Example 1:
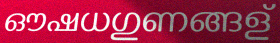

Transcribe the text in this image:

ഔഷധഗുണങ്ങള്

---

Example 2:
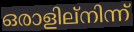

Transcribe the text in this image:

ഒരാളില്നിന്ന്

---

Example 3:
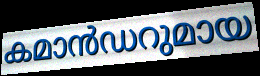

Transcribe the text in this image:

കമാൻഡറുമായ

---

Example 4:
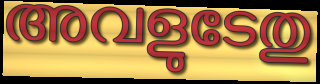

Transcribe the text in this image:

അവളുടേതു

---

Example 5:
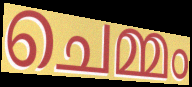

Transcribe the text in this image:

ചെമ്മം